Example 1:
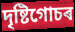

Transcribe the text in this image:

দৃষ্টিগোচৰ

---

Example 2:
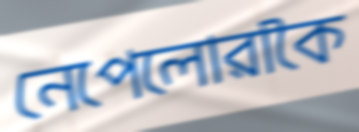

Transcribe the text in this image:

নেপেলোৱাকৈ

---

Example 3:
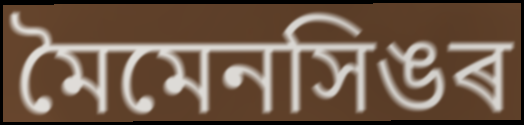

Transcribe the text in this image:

মৈমেনসিঙৰ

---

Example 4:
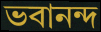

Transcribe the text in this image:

ভবানন্দ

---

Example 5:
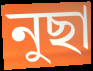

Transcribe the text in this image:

নুছা